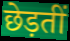
छेड़तीं